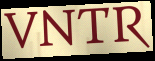
VNTR